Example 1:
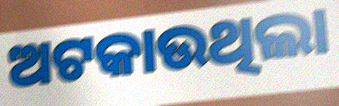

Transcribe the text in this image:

ଅଟକାଉଥିଲା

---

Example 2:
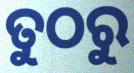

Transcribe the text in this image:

ତୁଠରୁ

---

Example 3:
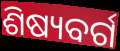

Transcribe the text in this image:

ଶିଷ୍ୟବର୍ଗ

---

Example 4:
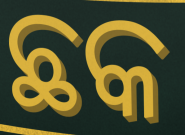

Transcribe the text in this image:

ଛକ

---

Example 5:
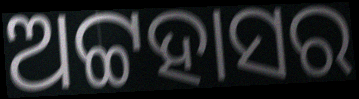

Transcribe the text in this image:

ଅଟ୍ଟହାସର